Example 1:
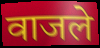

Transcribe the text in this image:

वाजले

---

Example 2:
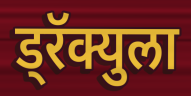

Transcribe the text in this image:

ड्रॅक्युला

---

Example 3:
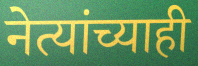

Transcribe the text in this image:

नेत्यांच्याही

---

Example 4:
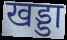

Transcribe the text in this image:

खड्डा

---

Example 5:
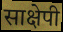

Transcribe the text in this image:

साक्षेपी